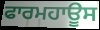
ਫਾਰਮਹਾਊਸ